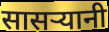
सासऱ्यानी